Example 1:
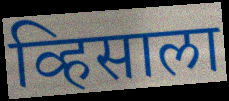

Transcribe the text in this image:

व्हिसाला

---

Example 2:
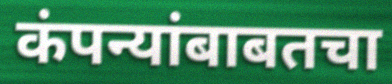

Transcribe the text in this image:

कंपन्यांबाबतचा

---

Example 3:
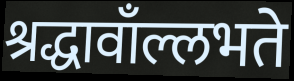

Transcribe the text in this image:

श्रद्धावाँल्लभते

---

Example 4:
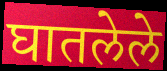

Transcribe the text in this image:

घातलेले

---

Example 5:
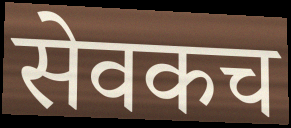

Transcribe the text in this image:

सेवकच